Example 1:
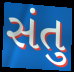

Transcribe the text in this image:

સંતુ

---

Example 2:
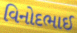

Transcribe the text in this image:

વિનોદભાઈ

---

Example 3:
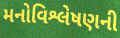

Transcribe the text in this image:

મનોવિશ્લેષણની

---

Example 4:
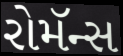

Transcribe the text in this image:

રોમૅન્સ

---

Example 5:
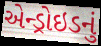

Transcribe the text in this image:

એન્ડ્રોઇડનું